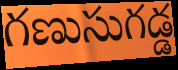
గణుసుగడ్డ